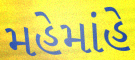
મહેમાંહે